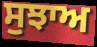
ਸੁਝਾਅ